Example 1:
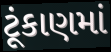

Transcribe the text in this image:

ટૂંકાણમાં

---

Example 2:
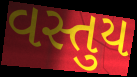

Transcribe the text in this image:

વસ્તુય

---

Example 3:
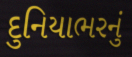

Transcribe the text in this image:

દુનિયાભરનું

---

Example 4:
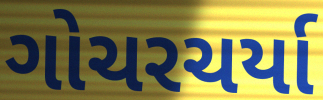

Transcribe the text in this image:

ગોચરચર્યા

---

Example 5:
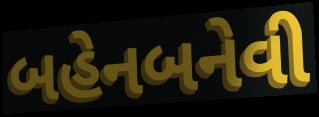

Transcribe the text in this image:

બહેનબનેવી